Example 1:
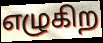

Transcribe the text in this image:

எழுகிற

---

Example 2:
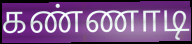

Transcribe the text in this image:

கண்ணாடி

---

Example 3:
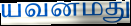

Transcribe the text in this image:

யவனமது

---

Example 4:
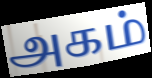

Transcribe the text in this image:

அகம்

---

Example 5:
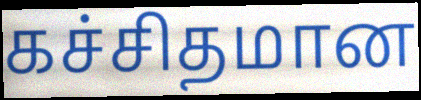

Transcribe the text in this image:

கச்சிதமான